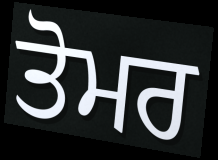
ਤੋਮਰ